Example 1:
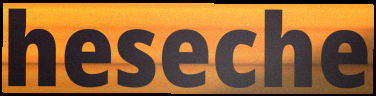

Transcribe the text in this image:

heseche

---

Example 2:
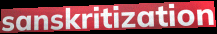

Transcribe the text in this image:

sanskritization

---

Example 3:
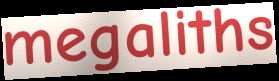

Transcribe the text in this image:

megaliths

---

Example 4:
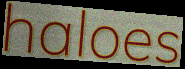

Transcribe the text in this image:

haloes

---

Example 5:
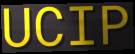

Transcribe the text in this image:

UCIP